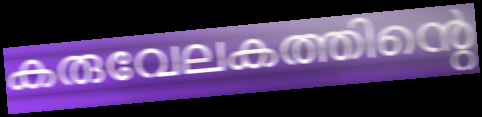
കരുവേലകത്തിന്റെ